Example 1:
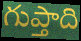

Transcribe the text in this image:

గుప్తాది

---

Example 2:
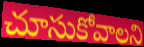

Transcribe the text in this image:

చూసుకోవాలని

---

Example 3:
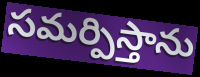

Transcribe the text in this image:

సమర్పిస్తాను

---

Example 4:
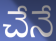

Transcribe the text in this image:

చేనే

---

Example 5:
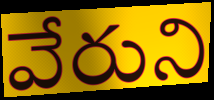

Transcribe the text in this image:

వేరుని